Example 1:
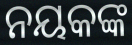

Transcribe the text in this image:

ନୟକଙ୍କ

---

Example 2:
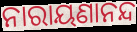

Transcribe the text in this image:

ନାରାୟଣାନନ୍ଦ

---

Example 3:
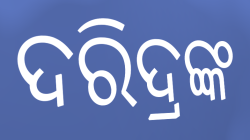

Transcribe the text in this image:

ଦରିଦ୍ରଙ୍କ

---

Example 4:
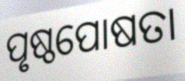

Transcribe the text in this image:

ପୃଷ୍ଠପୋଷତା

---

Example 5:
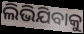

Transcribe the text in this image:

ଲିଭିଯିବାକୁ